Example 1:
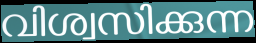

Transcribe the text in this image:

വിശ്വസിക്കുന്ന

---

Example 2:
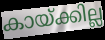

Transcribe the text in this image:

കായ്ക്കില്ല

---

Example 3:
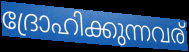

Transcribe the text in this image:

ദ്രോഹിക്കുന്നവര്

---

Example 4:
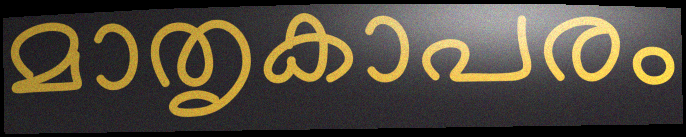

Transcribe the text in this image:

മാതൃകാപരം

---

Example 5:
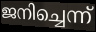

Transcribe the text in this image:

ജനിച്ചെന്ന്